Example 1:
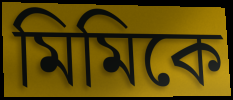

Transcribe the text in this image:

মিমিকে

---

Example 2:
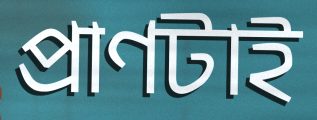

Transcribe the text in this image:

প্রাণটাই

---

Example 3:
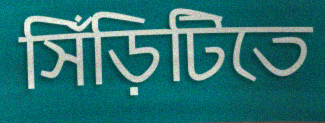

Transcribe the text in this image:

সিঁড়িটিতে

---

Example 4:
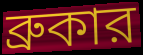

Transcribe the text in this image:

ব্রুকার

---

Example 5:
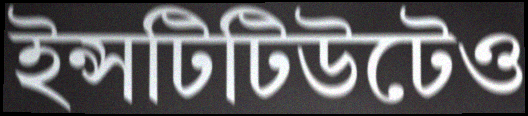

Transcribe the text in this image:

ইন্সটিটিউটেও